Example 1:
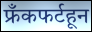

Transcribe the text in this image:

फ्रँकफर्टहून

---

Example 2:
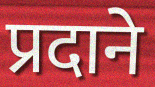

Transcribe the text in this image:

प्रदाने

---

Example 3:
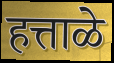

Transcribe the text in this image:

हत्ताळे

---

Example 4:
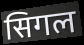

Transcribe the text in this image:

सिगल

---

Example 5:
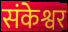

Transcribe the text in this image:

संकेश्वर